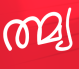
ത്മ്യ